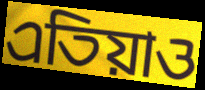
এতিয়াও